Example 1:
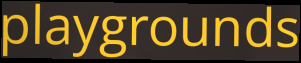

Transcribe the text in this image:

playgrounds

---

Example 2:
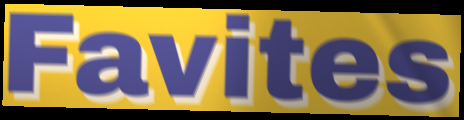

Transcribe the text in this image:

Favites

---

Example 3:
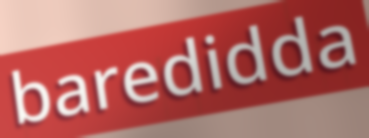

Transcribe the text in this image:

baredidda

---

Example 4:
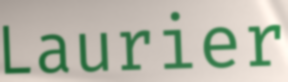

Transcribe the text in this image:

Laurier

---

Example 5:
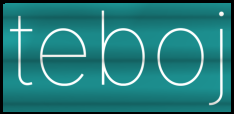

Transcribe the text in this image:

teboj